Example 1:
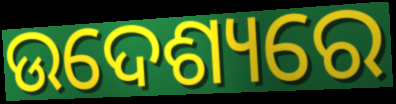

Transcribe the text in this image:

ଉଦେଶ୍ୟରେ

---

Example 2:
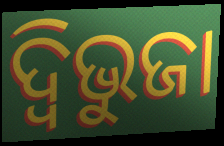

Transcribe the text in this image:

ଦ୍ବିଭୁଜା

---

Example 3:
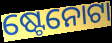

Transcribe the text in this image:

ଷ୍ଟେନୋଟା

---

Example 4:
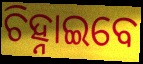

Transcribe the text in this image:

ଚିହ୍ନାଇବେ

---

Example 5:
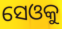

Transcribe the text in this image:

ସେଓକୁ